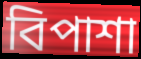
বিপাশা